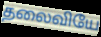
தலைவியே